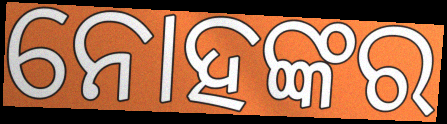
ନୋହଙ୍କର